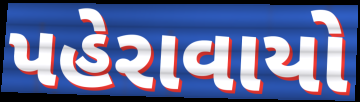
પહેરાવાયો